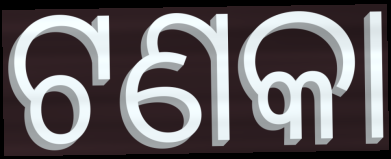
ଟଣକା